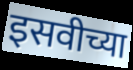
इसवीच्या